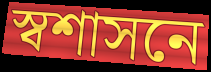
স্বশাসনে